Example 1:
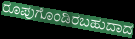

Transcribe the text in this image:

ರೂಪುಗೊಂಡಿರಬಹುದಾದ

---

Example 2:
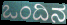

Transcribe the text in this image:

ಒಂದಿನ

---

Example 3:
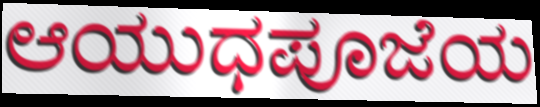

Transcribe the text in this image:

ಆಯುಧಪೂಜೆಯ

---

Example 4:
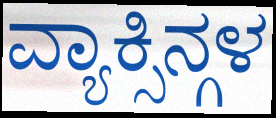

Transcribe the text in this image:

ವ್ಯಾಕ್ಸಿನ್ಗಳ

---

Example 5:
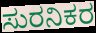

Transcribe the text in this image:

ಸುರನಿಕರ